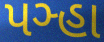
પઞ્હા